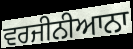
ਵਰਜੀਨੀਆਨਾ